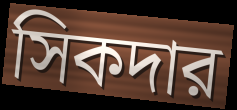
সিকদার